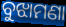
ବୁଝାମଣା